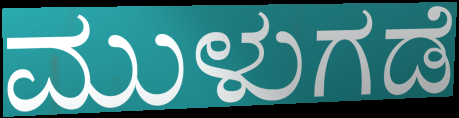
ಮುಳುಗಡೆ